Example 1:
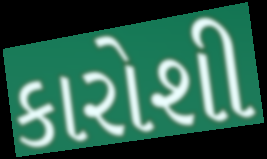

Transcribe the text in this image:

કારોશી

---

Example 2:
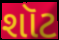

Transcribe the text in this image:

શૉટ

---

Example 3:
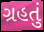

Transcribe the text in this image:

ગ્રહતું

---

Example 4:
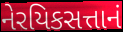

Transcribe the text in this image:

નેરયિકસત્તાનં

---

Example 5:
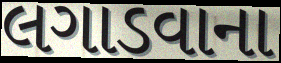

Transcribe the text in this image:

લગાડવાના